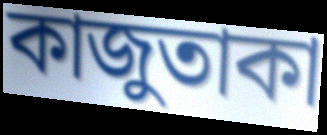
কাজুতাকা